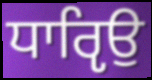
ਧਾਰੵਿਉ